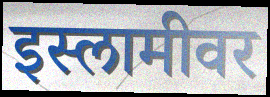
इस्लामीवर